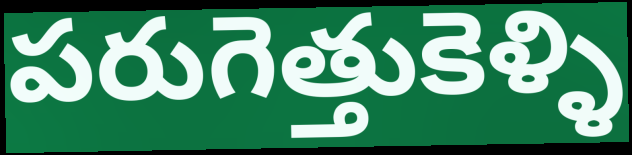
పరుగెత్తుకెళ్ళి